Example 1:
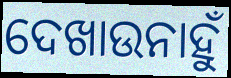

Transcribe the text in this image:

ଦେଖାଉନାହୁଁ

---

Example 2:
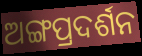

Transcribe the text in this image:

ଅଙ୍ଗପ୍ରଦର୍ଶନ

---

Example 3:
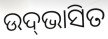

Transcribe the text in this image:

ଉଦ୍‌ଭାସିତ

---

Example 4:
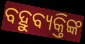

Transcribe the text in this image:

ବହୁବ୍ୟକ୍ତିଙ୍କ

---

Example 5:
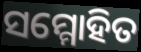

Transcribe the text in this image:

ସମ୍ମୋହିତ